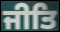
ਜੀਤਿ